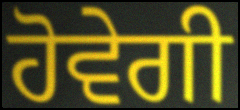
ਹੋਵੇਗੀ